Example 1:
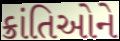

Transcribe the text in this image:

ક્રાંતિઓને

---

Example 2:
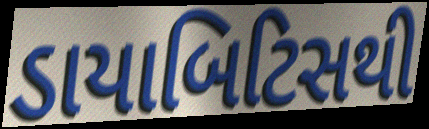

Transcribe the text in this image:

ડાયાબિટિસથી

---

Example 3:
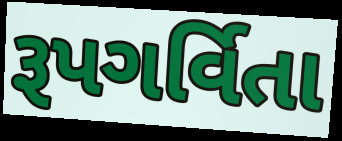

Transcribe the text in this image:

રૂપગર્વિતા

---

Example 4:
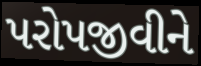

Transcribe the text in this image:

પરોપજીવીને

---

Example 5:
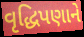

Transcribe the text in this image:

વૃદ્ધિપણાને